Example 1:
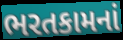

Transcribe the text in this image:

ભરતકામનાં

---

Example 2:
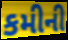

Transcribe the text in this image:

કમીની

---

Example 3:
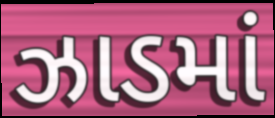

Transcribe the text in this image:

ઝાડમાં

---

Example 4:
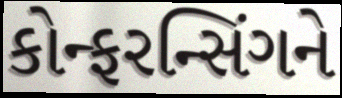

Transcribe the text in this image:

કોન્ફરન્સિંગને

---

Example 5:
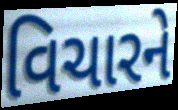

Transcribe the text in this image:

વિચારને